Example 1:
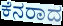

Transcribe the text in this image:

ಕೆನರಾದ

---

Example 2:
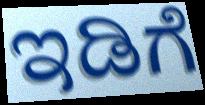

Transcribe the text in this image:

ಇಡಿಗೆ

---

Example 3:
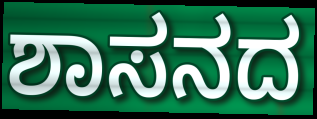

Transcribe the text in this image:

ಶಾಸನದ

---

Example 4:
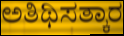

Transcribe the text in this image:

ಅತಿಥಿಸತ್ಕಾರ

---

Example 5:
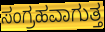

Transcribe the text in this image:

ಸಂಗ್ರಹವಾಗುತ್ತ